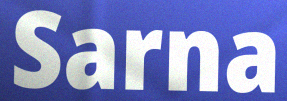
Sarna